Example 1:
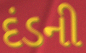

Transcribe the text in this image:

દંડની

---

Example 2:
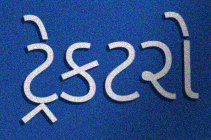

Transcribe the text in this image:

ટ્રેકટરો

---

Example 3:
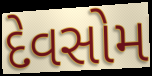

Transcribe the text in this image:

દેવસોમ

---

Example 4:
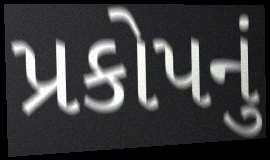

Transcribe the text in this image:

પ્રકોપનું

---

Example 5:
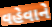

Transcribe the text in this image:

વહેવાને